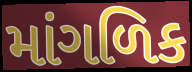
માંગળિક